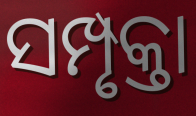
ସମ୍ପୃକ୍ତା